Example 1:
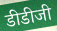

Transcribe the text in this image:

डीडीजी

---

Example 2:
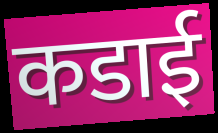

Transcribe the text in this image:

कडाई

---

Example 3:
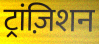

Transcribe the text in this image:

ट्रांज़िशन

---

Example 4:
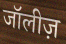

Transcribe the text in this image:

जॉलीज़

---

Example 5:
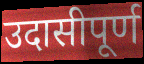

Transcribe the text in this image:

उदासीपूर्ण